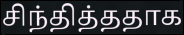
சிந்தித்ததாக